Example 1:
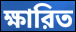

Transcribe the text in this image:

ক্ষারিত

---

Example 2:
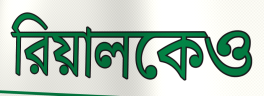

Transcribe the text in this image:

রিয়ালকেও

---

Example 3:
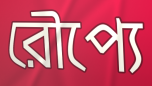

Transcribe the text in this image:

রৌপ্যে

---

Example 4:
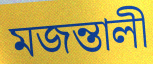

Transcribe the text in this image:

মজন্তালী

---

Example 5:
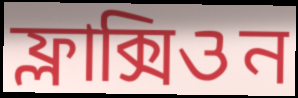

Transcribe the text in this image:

ফ্লাক্সিওন